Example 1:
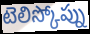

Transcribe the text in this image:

టెలిస్కోప్ను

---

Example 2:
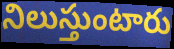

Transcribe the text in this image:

నిలుస్తుంటారు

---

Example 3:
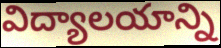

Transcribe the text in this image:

విద్యాలయాన్ని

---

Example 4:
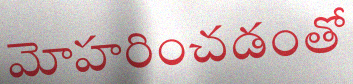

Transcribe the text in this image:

మోహరించడంతో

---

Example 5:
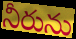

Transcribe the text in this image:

నీరును